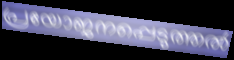
പ്രയോജനപ്പെടുത്തൽ